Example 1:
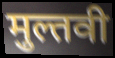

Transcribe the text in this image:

मुल्तवी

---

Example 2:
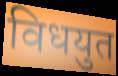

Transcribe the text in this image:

विधयुत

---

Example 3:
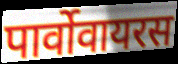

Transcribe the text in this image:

पार्वोवायरस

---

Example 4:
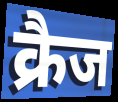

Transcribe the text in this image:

क्रैज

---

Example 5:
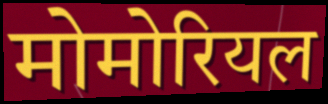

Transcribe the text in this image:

मोमोरियल